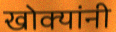
खोक्यांनी